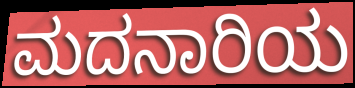
ಮದನಾರಿಯ